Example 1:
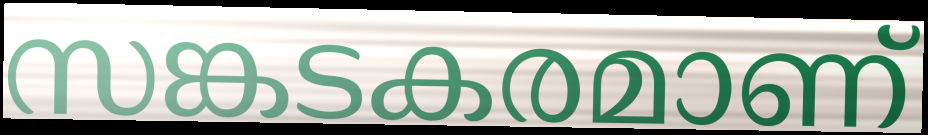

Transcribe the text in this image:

സങ്കടകരമാണ്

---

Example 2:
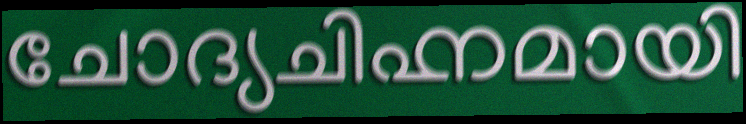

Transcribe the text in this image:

ചോദ്യചിഹ്നമായി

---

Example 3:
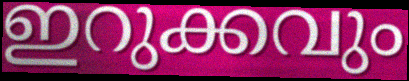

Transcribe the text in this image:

ഇറുക്കവും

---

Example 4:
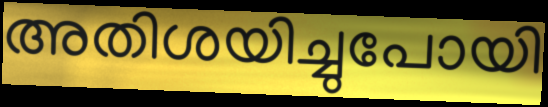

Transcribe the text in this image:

അതിശയിച്ചുപോയി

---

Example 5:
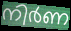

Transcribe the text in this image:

നിർണ